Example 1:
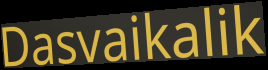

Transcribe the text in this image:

Dasvaikalik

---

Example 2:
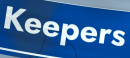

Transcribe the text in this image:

Keepers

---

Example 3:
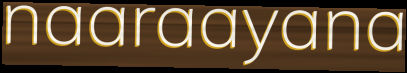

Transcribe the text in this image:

naaraayana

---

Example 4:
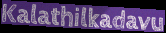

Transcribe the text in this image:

Kalathilkadavu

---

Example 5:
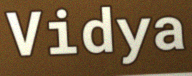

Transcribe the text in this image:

Vidya